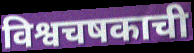
विश्वचषकाची